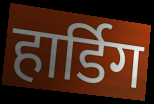
हार्डिग